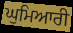
ਘੁਮਿਆਰੀ